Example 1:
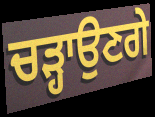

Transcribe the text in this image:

ਚੜ੍ਹਾਉਣਗੇ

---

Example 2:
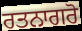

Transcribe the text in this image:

ਰਤਨਾਗਰੋ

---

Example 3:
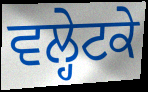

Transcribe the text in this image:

ਵਲ੍ਹੇਟਕੇ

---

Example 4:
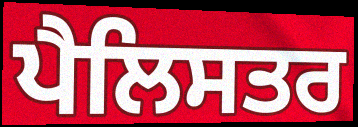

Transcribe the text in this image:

ਪੈਲਿਸਤਰ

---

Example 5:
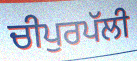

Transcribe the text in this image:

ਚੀਪੁਰਪੱਲੀ